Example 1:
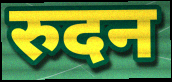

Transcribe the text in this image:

रुदन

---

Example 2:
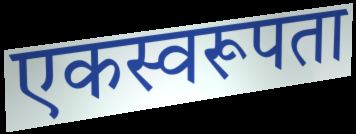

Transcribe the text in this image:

एकस्वरूपता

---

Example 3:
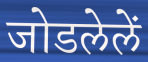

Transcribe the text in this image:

जोडलेलें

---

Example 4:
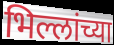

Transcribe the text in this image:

भिल्लांच्या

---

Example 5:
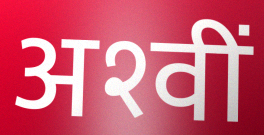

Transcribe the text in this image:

अश्वीं